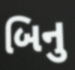
બિનુ